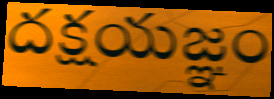
దక్షయజ్ఞం